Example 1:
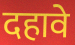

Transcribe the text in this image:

दहावे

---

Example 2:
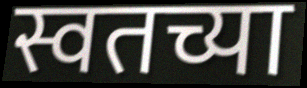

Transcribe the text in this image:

स्वतच्या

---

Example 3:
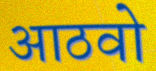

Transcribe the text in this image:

आठवो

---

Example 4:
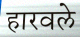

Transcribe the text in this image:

हारवले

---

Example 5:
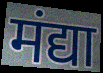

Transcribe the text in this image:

मंद्या